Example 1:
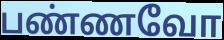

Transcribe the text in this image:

பண்ணவோ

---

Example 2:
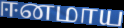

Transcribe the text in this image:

ஈனமாய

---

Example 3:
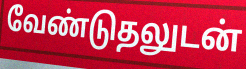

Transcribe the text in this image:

வேண்டுதலுடன்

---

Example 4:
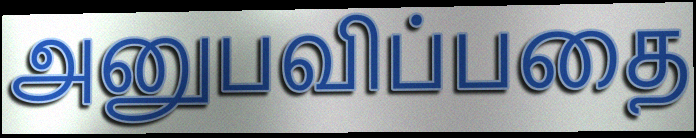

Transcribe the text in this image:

அனுபவிப்பதை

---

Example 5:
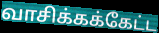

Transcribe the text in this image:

வாசிக்கக்கேட்ட